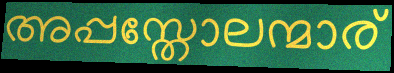
അപ്പസ്തോലന്മാര്